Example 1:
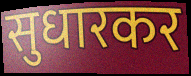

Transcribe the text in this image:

सुधारकर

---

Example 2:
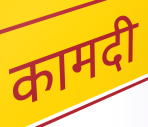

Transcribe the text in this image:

कामदी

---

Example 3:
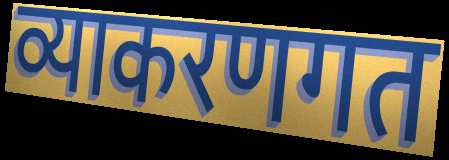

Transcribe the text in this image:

व्याकरणगत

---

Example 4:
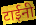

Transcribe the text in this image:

टाईनी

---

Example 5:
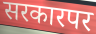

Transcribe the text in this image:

सरकारपर